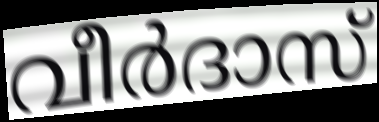
വീർദാസ്